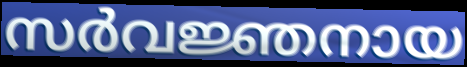
സർവജ്ഞനായ